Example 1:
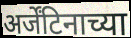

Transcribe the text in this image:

अर्जेंटिनाच्या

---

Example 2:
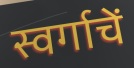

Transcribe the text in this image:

स्वर्गाचें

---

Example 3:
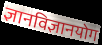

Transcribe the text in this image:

ज्ञानविज्ञानयोग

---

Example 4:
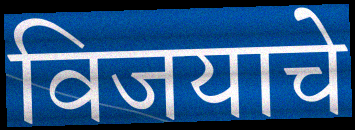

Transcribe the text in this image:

विजयाचे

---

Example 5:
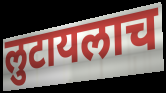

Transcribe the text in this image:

लुटायलाच